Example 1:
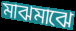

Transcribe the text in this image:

মাঝমাঝে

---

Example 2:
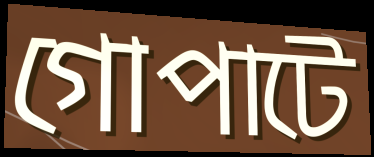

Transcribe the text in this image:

গোপাটে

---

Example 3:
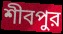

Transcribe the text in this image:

শীবপুর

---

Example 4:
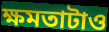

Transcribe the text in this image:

ক্ষমতাটাও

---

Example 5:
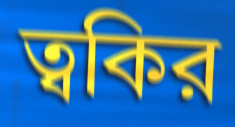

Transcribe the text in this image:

ত্বকির